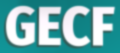
GECF